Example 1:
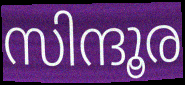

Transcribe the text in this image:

സിന്ദൂര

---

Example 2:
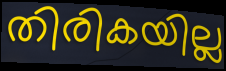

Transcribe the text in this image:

തിരികയില്ല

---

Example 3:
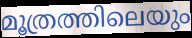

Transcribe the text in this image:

മൂത്രത്തിലെയും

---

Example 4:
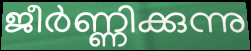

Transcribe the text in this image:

ജീർണ്ണിക്കുന്നു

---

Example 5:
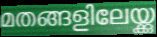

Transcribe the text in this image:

മതങ്ങളിലേയ്ക്കു